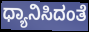
ಧ್ಯಾನಿಸಿದಂತೆ